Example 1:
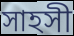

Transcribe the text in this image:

সাহসী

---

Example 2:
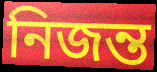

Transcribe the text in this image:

নিজন্ত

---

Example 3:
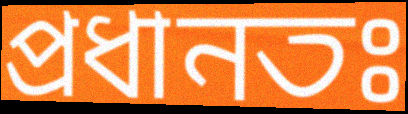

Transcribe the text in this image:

প্ৰধানতঃ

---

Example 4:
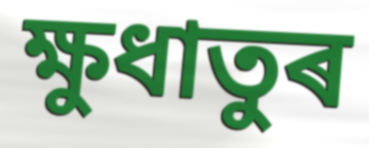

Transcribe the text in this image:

ক্ষুধাতুৰ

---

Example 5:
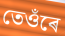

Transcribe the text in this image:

তেওঁৰে